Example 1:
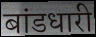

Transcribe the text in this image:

बांडधारी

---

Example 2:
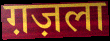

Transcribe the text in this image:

ग़ज़ला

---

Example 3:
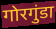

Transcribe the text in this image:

गोरगुंडा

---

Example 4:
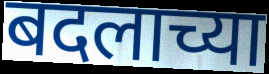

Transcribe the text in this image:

बदलाच्या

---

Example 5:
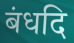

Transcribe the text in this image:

बंधदि